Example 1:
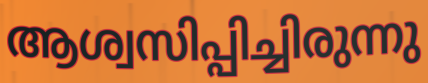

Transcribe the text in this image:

ആശ്വസിപ്പിച്ചിരുന്നു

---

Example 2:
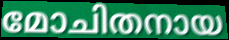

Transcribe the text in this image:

മോചിതനായ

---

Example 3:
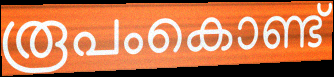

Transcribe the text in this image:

രൂപംകൊണ്ട്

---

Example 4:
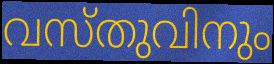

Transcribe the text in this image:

വസ്തുവിനും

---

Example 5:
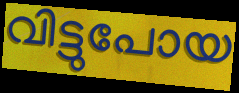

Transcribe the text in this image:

വിട്ടുപോയ